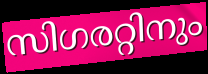
സിഗരറ്റിനും